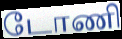
டோணி